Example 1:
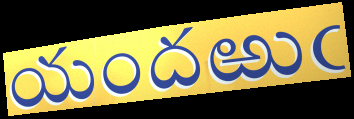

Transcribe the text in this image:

యందఱుఁ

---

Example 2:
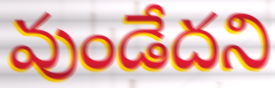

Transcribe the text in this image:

వుండేదని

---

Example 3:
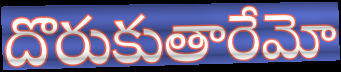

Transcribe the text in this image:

దొరుకుతారేమో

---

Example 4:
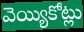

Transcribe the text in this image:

వెయ్యికోట్లు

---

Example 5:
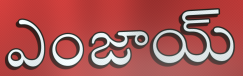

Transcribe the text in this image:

ఎంజాయ్